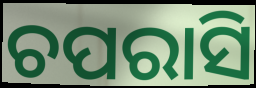
ଚପରାସି